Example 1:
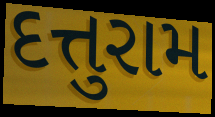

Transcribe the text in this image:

દત્તુરામ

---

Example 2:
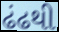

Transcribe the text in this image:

ઢંઢથી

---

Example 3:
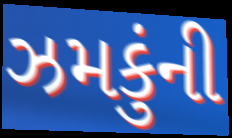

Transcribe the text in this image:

ઝમકુંની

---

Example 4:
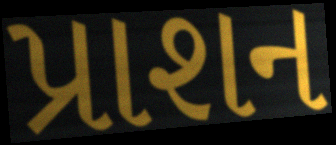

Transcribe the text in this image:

પ્રાશન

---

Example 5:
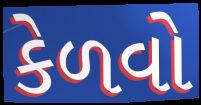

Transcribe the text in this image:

કેળવો